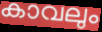
കാവലും